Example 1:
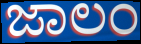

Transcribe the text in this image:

ಜಾಲಂ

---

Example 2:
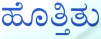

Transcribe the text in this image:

ಹೊತ್ತಿತು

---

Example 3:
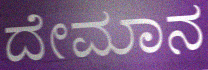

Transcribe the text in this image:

ದೇಮಾನ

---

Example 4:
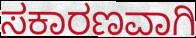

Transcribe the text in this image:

ಸಕಾರಣವಾಗಿ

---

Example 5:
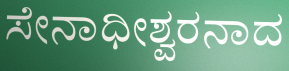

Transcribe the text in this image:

ಸೇನಾಧೀಶ್ವರನಾದ